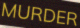
MURDER